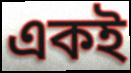
একই